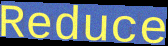
Reduce